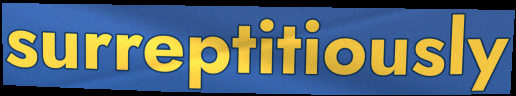
surreptitiously